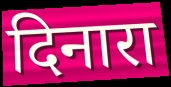
दिनारा